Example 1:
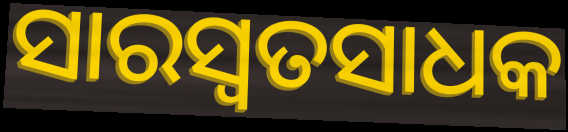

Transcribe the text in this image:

ସାରସ୍ଵତସାଧକ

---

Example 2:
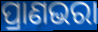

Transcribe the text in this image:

ପ୍ରାଣଭରା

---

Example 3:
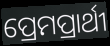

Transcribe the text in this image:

ପ୍ରେମପ୍ରାର୍ଥୀ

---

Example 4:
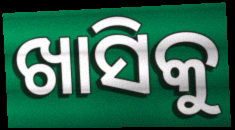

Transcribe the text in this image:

ଖାସିକୁ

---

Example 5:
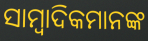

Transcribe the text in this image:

ସାମ୍ବାଦିକମାନଙ୍କ